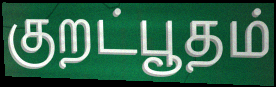
குறட்பூதம்